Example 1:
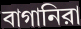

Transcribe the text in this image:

বাগানিরা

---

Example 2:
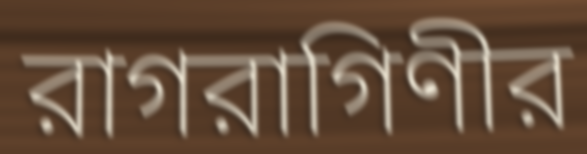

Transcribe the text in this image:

রাগরাগিণীর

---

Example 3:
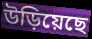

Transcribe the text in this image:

উড়িয়েছে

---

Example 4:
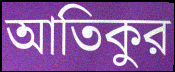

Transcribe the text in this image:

আতিকুর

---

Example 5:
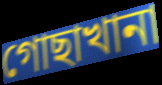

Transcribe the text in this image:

গোছাখানা